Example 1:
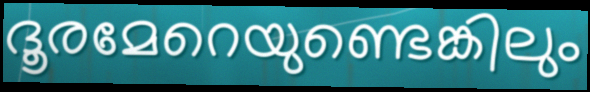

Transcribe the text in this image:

ദൂരമേറെയുണ്ടെങ്കിലും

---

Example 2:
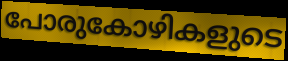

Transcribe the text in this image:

പോരുകോഴികളുടെ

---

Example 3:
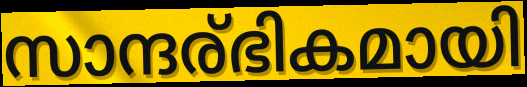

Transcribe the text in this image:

സാന്ദര്ഭികമായി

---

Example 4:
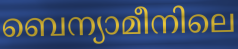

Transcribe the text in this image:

ബെന്യാമീനിലെ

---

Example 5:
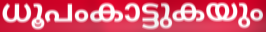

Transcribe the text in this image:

ധൂപംകാട്ടുകയും